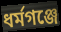
ধর্মগঞ্জে